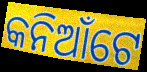
କନିଆଁଟେ